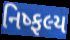
નિષ્ફલ્ય